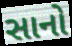
સાનો